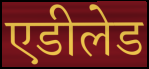
एडीलेड